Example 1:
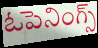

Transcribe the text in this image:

ఓపెనింగ్స్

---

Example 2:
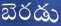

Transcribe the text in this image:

బెరడు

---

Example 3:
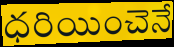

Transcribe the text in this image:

ధరియించెనే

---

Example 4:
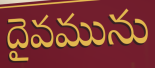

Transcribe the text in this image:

దైవమును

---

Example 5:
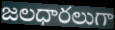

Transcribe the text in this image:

జలధారలుగా